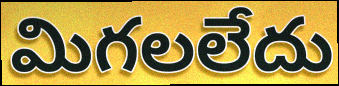
మిగలలేదు